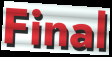
Final